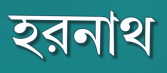
হরনাথ